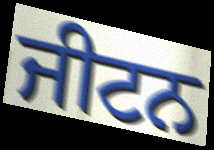
ਜੀਟਨ